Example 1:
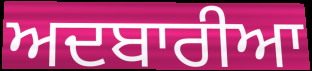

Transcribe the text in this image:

ਅਦਬਾਰੀਆ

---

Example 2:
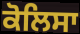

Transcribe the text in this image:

ਕੋਲਿਸਾ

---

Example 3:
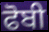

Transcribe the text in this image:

ਫੋਬੀ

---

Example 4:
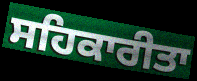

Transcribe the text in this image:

ਸਹਿਕਾਰੀਤਾ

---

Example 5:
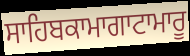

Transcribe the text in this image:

ਸਾਹਿਬਕਾਮਾਗਾਟਾਮਾਰੂ